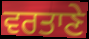
ਵਰਤਾਣੇ